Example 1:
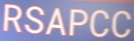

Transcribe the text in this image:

RSAPCC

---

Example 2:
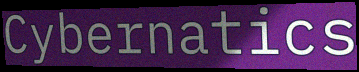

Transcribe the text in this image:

Cybernatics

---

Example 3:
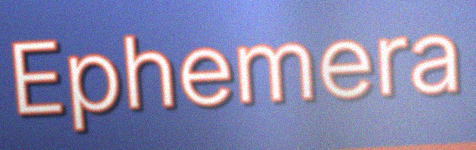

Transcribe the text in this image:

Ephemera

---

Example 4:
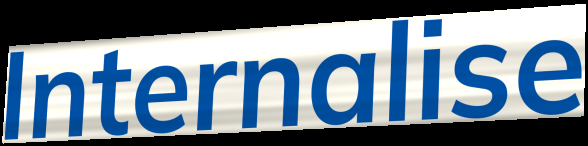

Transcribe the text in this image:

Internalise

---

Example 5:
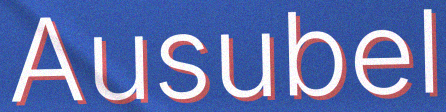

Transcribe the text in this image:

Ausubel